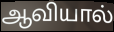
ஆவியால்